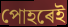
পোহৰেই